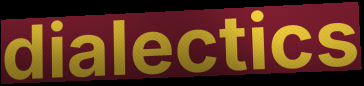
dialectics